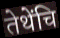
तेथेंचि